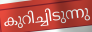
കുറിച്ചിടുന്നു